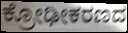
ಕ್ರೋಢೀಕರಣದ